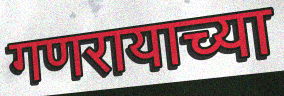
गणरायाच्या